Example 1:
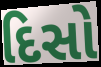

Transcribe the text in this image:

દિસો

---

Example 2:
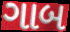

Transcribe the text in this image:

ગાબ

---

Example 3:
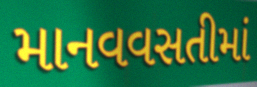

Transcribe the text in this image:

માનવવસતીમાં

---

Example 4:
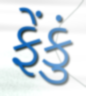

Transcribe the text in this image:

ફેંકું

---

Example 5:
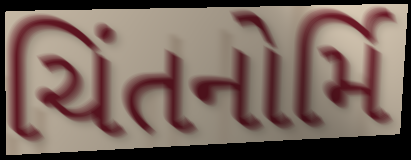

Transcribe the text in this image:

ચિંતનોર્મિ